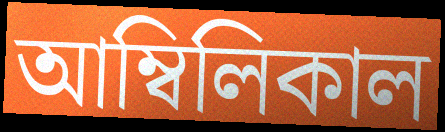
আম্বিলিকাল